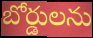
బోర్డులను